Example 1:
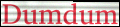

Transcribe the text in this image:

Dumdum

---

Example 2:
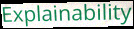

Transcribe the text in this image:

Explainability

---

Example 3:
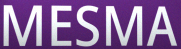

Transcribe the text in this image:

MESMA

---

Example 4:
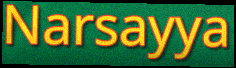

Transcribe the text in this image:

Narsayya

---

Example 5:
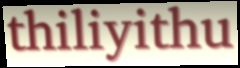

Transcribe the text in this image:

thiliyithu